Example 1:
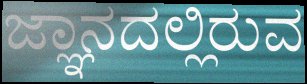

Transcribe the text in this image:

ಜ್ಞಾನದಲ್ಲಿರುವ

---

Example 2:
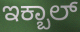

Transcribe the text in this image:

ಇಕ್ಬಾಲ್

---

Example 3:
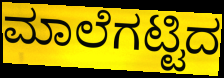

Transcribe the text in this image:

ಮಾಲೆಗಟ್ಟಿದ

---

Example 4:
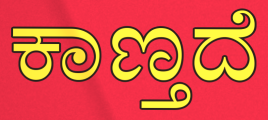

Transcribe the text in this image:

ಕಾಣ್ತದೆ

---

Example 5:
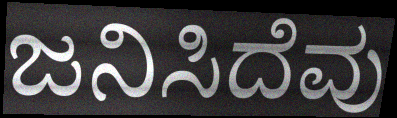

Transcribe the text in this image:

ಜನಿಸಿದೆವು